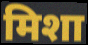
मिशा